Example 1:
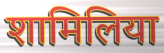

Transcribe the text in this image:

शामिलिया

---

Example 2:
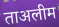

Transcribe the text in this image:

ताअलीम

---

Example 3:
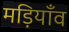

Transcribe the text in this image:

मड़ियाँव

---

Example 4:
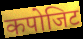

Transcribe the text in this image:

कपोजिट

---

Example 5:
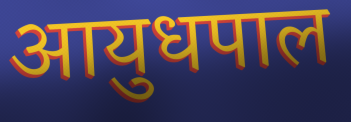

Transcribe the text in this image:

आयुधपाल